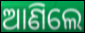
ଆଣିଲେ